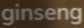
ginseng